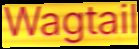
Wagtail